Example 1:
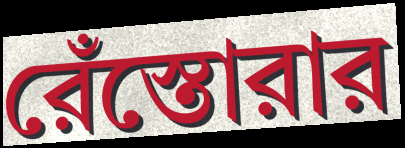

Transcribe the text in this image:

রেঁস্তোরার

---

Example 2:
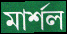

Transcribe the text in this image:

মার্শল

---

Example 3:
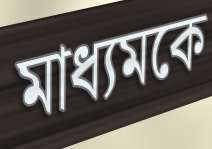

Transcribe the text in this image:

মাধ্যমকে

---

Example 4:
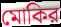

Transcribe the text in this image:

মোকির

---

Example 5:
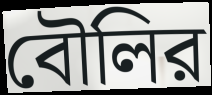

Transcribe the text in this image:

বৌলির